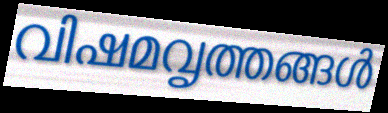
വിഷമവൃത്തങ്ങൾ